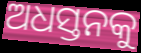
ଅଧସ୍ତନକୁ